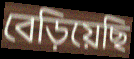
বেড়িয়েছি